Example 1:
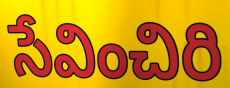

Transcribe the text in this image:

సేవించిరి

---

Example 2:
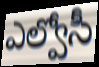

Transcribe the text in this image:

ఎల్వోసీ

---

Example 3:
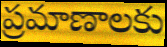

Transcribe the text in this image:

ప్రమాణాలకు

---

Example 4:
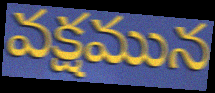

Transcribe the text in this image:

వక్షమున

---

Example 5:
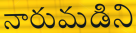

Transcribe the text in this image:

నారుమడిని